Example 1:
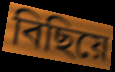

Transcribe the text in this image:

বিছিয়ে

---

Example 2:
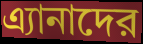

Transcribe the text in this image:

এ্যানাদের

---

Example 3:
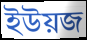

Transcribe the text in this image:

ইউয়জ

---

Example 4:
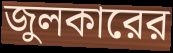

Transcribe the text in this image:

জুলকারের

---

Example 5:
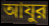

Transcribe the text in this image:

আযুর